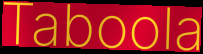
Taboola